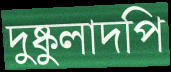
দুষ্কুলাদপি